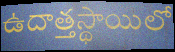
ఉదాత్తస్థాయిలో